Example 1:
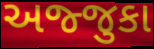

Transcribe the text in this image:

અજ્જુકા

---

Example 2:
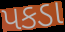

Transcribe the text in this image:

પકડા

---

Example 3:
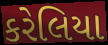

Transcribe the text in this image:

કરેલિયા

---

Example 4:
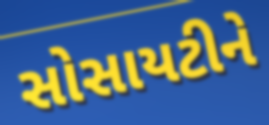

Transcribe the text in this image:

સોસાયટીને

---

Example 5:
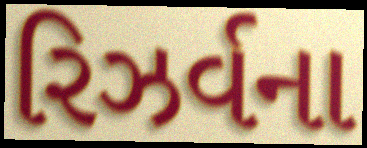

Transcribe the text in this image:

રિઝર્વના